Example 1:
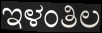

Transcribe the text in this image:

ಇಳಂತಿಲ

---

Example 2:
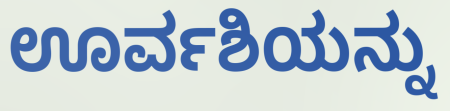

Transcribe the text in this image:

ಊರ್ವಶಿಯನ್ನು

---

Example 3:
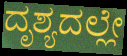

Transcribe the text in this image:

ದೃಶ್ಯದಲ್ಲೇ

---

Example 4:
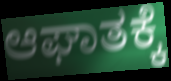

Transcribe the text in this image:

ಆಘಾತಕ್ಕೆ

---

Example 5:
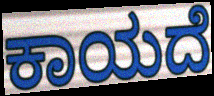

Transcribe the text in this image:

ಕಾಯದೆ